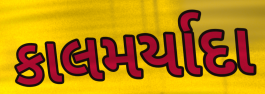
કાલમર્યાદા